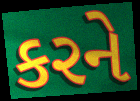
કરને